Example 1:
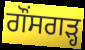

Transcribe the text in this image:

ਗੌਂਸਗੜ੍ਹ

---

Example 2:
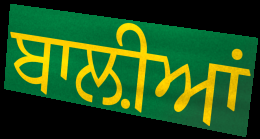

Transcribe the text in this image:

ਬਾਲ਼ੀਆਂ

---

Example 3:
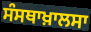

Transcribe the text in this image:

ਸੰਸਥਾਖ਼ਾਲਸਾ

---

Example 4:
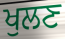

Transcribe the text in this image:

ਖੁਲਣ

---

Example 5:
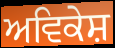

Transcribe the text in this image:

ਅਵਿਕੇਸ਼